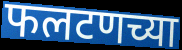
फलटणच्या